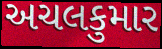
અચલકુમાર